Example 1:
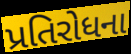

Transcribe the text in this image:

પ્રતિરોધના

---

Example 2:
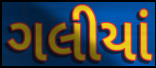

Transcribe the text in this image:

ગલીયાં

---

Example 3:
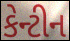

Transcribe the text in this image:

કેન્ટીન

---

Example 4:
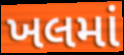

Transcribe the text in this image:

ખલમાં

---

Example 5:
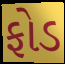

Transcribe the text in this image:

ફોડ